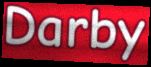
Darby